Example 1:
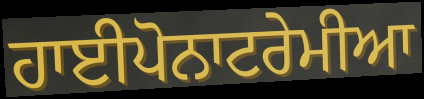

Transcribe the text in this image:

ਹਾਈਪੋਨਾਟਰੇਮੀਆ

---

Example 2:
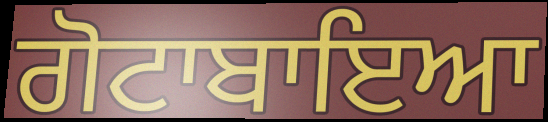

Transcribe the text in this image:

ਗੋਟਾਬਾਇਆ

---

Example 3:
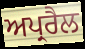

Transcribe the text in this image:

ਅਪ੍ਰਰੈਲ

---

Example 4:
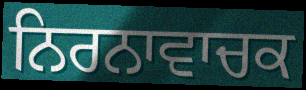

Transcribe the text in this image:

ਨਿਰਨਾਵਾਚਕ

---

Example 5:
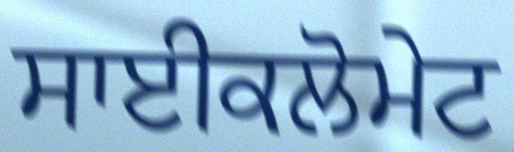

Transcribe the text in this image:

ਸਾਈਕਲੋਮੇਟ